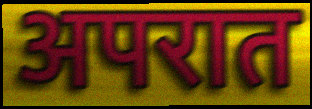
अपरात